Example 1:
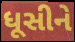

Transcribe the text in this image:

ધૂસીને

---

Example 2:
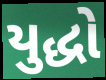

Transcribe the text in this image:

યુદ્ધો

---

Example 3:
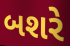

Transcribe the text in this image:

બશરે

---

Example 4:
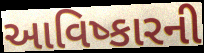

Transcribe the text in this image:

આવિષ્કારની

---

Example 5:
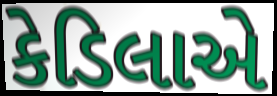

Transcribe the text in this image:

કેડિલાએ